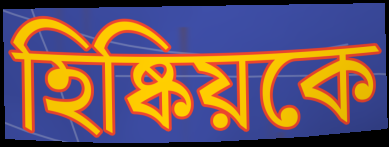
হিষ্কিয়কে